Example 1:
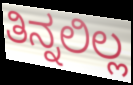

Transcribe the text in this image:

ತಿನ್ನಲಿಲ್ಲ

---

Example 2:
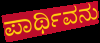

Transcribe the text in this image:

ಪಾರ್ಥಿವನು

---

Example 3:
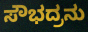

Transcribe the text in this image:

ಸೌಭದ್ರನು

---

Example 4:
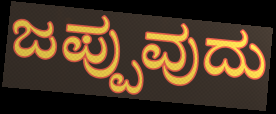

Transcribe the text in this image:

ಜಪ್ಪುವುದು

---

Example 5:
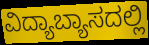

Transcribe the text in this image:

ವಿದ್ಯಾಬ್ಯಾಸದಲ್ಲಿ